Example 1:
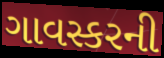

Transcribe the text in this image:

ગાવસ્કરની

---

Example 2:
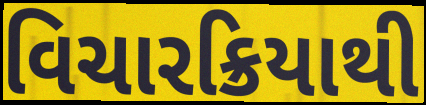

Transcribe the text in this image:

વિચારક્રિયાથી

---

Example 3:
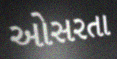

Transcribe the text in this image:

ઓસરતા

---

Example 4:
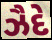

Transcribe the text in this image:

ઝૈદે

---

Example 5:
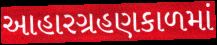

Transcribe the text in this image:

આહારગ્રહણકાળમાં